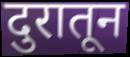
दुरातून